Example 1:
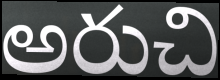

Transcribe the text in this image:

అరుచి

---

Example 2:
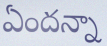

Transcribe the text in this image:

ఏందన్నా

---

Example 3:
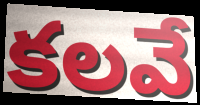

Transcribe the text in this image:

కలవే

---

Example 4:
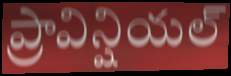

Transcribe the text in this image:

ప్రావిన్షియల్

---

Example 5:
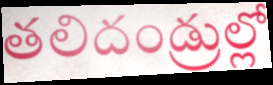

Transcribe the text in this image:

తలిదండ్రుల్లో